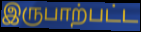
இருபாற்பட்ட